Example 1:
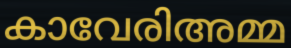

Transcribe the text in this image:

കാവേരിഅമ്മ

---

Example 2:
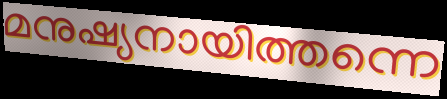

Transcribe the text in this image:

മനുഷ്യനായിത്തന്നെ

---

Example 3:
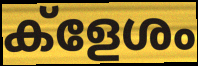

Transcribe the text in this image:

ക്ളേശം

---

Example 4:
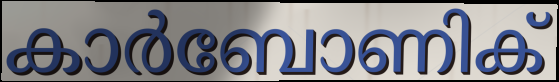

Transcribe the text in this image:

കാർബോണിക്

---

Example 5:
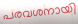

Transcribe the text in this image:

പരവശനായി